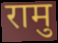
रामु